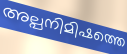
അല്പനിമിഷത്തെ